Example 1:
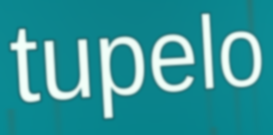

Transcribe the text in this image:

tupelo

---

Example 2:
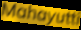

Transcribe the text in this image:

Mahayutti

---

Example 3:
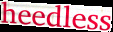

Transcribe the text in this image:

heedless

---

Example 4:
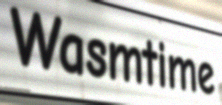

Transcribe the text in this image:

Wasmtime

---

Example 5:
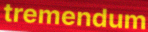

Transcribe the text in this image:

tremendum